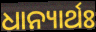
ଧାନ୍ୟାର୍ଥଃ